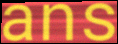
ans